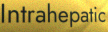
Intrahepatic